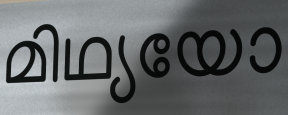
മിഥ്യയോ